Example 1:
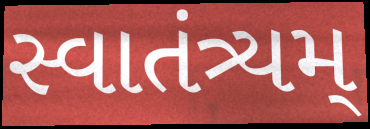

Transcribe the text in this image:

સ્વાતંત્ર્યમ્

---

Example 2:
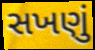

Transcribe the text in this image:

સખણું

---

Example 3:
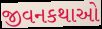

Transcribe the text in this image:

જીવનકથાઓ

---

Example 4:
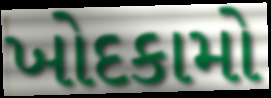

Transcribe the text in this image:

ખોદકામો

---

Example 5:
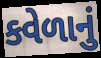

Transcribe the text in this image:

કવેળાનું